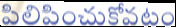
పిలిపించుకోవటం